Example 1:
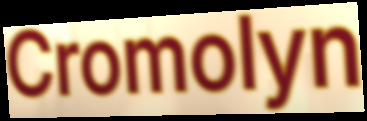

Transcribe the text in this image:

Cromolyn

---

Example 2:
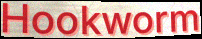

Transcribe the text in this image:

Hookworm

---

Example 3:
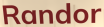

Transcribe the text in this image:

Randor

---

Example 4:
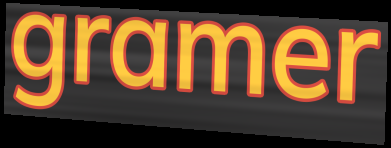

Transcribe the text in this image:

gramer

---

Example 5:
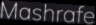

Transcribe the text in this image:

Mashrafe